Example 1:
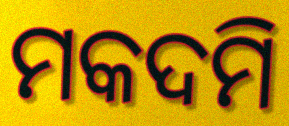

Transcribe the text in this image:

ମକଦମି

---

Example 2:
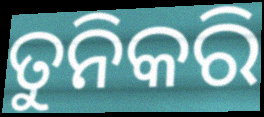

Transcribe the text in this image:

ତୁନିକରି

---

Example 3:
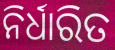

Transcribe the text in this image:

ନିର୍ଧାରିତ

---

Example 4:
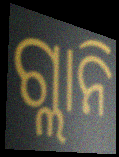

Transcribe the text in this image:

ଗ୍ଲାନି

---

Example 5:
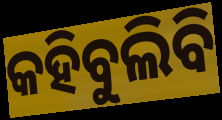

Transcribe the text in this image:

କହିବୁଲିବି